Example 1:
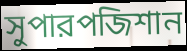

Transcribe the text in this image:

সুপারপজিশান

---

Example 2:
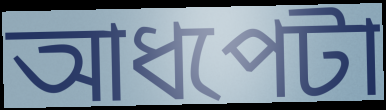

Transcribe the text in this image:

আধপেটা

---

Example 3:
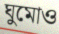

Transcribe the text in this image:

ঘুমোও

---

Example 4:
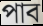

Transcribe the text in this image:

পাব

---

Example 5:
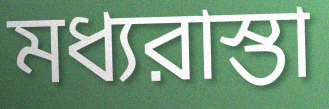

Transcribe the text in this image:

মধ্যরাস্তা